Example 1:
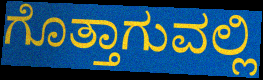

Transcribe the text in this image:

ಗೊತ್ತಾಗುವಲ್ಲಿ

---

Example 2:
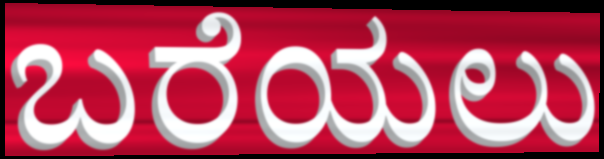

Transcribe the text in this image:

ಬರೆಯಲು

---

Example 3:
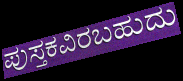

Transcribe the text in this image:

ಪುಸ್ತಕವಿರಬಹುದು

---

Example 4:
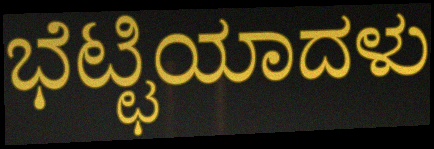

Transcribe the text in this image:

ಭೆಟ್ಟಿಯಾದಳು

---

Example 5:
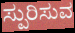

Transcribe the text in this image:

ಸ್ಪುರಿಸುವ